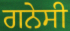
ਗਨੇਸੀ